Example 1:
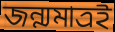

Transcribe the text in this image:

জন্মমাত্রই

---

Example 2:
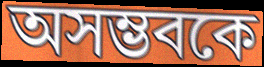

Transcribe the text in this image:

অসম্ভবকে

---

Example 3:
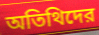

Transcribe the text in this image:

অতিথিদের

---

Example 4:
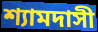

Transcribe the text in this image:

শ্যামদাসী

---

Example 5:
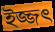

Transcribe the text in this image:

ইজ্জৎ